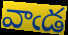
వాఁడ